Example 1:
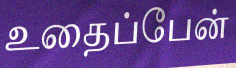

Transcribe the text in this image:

உதைப்பேன்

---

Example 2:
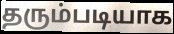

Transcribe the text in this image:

தரும்படியாக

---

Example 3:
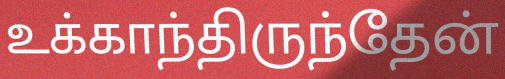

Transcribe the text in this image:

உக்காந்திருந்தேன்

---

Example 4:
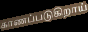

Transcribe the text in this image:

காணப்படுகிறாய்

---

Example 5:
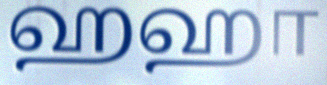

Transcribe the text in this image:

ஹஹா